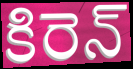
కిరెన్